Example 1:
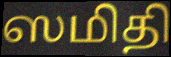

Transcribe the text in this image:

ஸமிதி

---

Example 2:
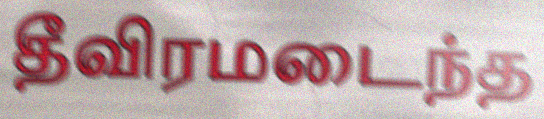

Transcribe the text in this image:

தீவிரமடைந்த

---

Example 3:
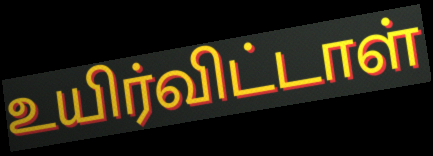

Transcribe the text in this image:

உயிர்விட்டாள்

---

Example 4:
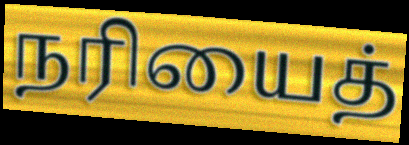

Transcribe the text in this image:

நரியைத்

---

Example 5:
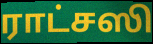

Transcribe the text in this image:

ராட்சஸி